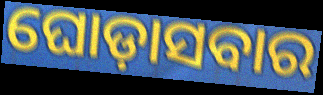
ଘୋଡ଼ାସବାର